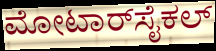
ಮೋಟಾರ್‌ಸೈಕಲ್